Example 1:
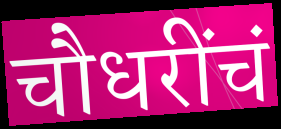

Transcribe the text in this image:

चौधरींचं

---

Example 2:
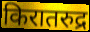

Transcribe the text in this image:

किरातरुद्र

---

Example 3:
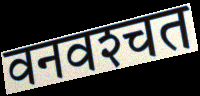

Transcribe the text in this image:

वनवश्चत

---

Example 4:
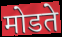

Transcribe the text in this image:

मोडते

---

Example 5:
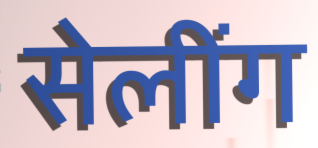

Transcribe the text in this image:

सेलींग